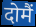
दोमैं